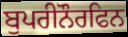
ਬੁਪਰੀਨੌਰਫਿਨ